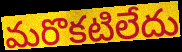
మరొకటిలేదు